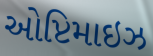
ઓપ્ટિમાઇઝ